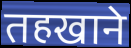
तहखाने